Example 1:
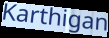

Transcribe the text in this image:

Karthigan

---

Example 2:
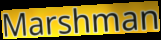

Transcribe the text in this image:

Marshman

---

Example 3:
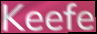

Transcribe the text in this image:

Keefe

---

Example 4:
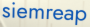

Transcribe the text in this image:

siemreap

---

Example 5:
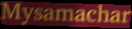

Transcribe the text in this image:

Mysamachar